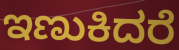
ಇಣುಕಿದರೆ